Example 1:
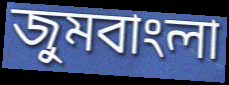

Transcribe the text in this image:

জুমবাংলা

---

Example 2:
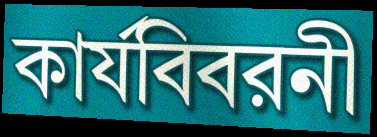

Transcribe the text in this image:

কার্যবিবরনী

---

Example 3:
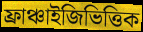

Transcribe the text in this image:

ফ্রাঞ্চাইজিভিত্তিক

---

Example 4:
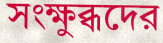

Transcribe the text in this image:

সংক্ষুব্ধদের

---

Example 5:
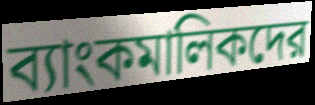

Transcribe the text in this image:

ব্যাংকমালিকদের